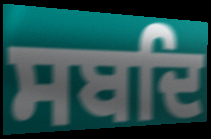
ਸਬਦਿ